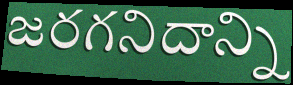
జరగనిదాన్ని